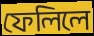
ফেলিলে